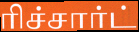
ரிச்சார்ட்